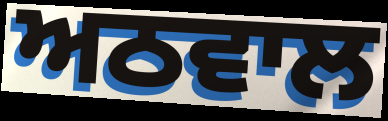
ਅਠਵਾਲ